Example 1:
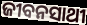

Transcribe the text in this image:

ଜୀବନସାଥୀ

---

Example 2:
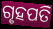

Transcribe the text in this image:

ଗୃହପତି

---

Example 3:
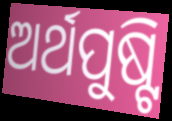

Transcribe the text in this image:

ଅର୍ଥପୁଷ୍ଟି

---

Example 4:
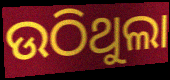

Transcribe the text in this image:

ଉଠିଥୁଲା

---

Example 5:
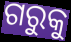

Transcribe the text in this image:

ଗରୁକୁ